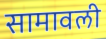
सामावली